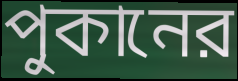
পুকানের